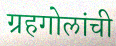
ग्रहगोलांची